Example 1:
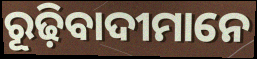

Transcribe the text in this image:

ରୂଢ଼ିବାଦୀମାନେ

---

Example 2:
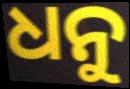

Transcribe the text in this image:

ଧନୁ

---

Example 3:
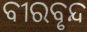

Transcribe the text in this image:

ବୀରବୃନ୍ଦ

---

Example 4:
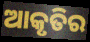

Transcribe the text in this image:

ଆକୃତିର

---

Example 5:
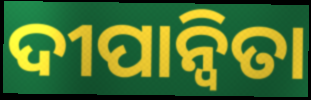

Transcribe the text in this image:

ଦୀପାନ୍ୱିତା